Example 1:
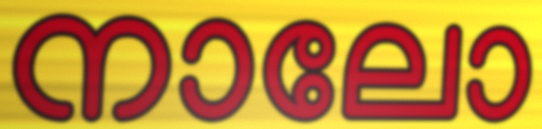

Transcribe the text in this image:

നാലോ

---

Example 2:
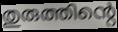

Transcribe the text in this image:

തുരുത്തിന്റെ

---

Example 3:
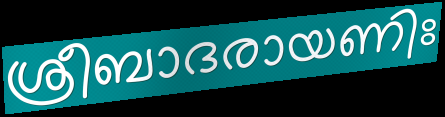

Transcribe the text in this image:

ശ്രീബാദരായണിഃ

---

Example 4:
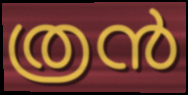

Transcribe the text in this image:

ത്രൻ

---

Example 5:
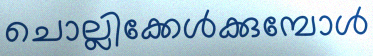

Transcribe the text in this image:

ചൊല്ലിക്കേൾക്കുമ്പോൾ